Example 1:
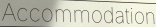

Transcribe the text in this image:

Accommodation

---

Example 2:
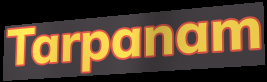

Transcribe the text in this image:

Tarpanam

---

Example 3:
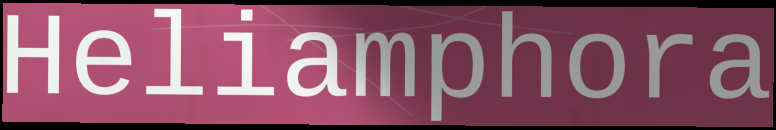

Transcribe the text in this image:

Heliamphora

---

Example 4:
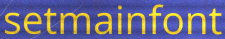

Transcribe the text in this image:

setmainfont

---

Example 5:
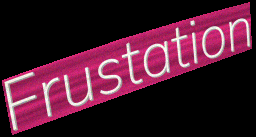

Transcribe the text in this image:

Frustation